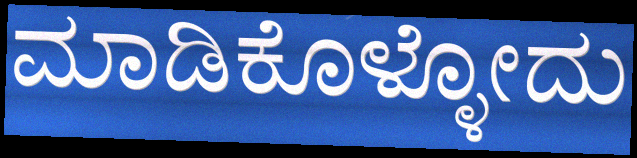
ಮಾಡಿಕೊಳ್ಳೋದು